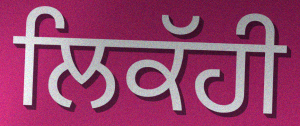
ਲਿਕੱਹੀ